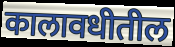
कालावधीतील